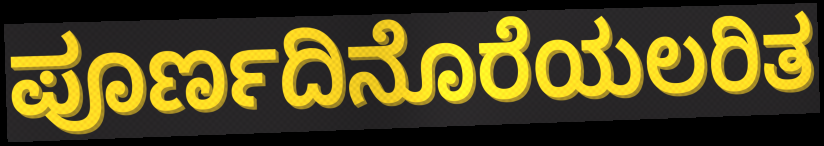
ಪೂರ್ಣದಿನೊರೆಯಲರಿತ